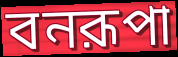
বনরূপা